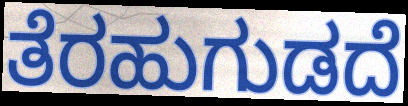
ತೆರಹುಗುಡದೆ